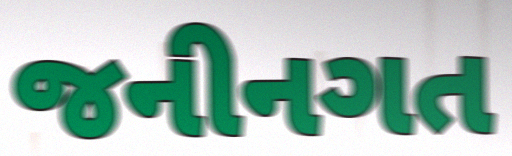
જનીનગત